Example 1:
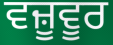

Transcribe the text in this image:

ਵਜ਼ੂਵੂਰ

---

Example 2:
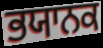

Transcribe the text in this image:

ਭਯਾਨਕ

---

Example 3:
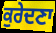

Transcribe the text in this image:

ਕੁਰੇਦਣਾ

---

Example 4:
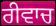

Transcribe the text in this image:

ਰੀਵਾਚ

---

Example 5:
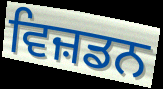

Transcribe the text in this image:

ਵਿਜ਼ਡਨ